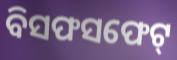
ବିସଫସଫେଟ୍